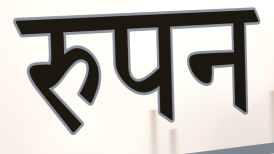
रुपन